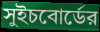
সুইচবোর্ডের